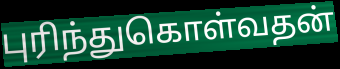
புரிந்துகொள்வதன்